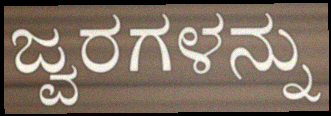
ಜ್ವರಗಳನ್ನು